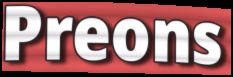
Preons